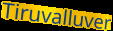
Tiruvalluver